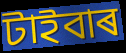
টাইবাৰ